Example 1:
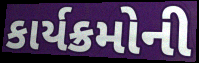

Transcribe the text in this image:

કાર્યક્રમોની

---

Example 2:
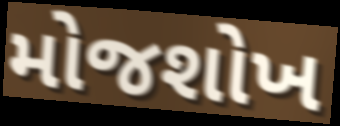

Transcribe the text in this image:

મોજશોખ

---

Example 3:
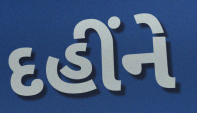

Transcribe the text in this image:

દહીંને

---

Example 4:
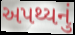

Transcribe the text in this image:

અપથ્યનું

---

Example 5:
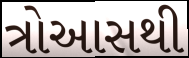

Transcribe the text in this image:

ત્રોઆસથી